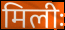
मिलीः